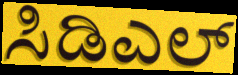
ಸಿಡಿಎಲ್